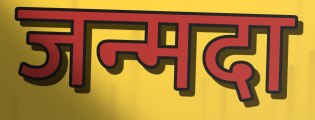
जन्मदा